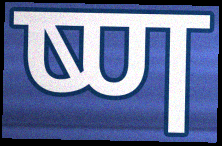
ष्ण